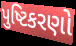
પુષ્ટિકરણો